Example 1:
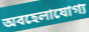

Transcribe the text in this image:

অবহেলাযোগ্য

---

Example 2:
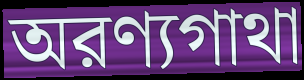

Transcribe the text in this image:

অরণ্যগাথা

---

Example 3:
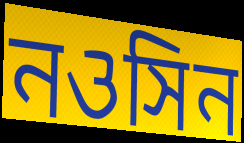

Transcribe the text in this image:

নওসিন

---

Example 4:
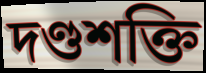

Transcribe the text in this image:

দণ্ডশক্তি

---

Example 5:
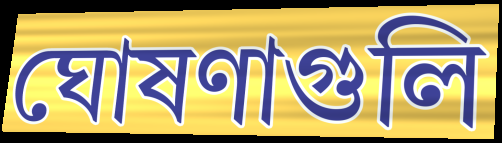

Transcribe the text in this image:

ঘোষণাগুলি